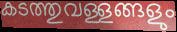
കടത്തുവള്ളങ്ങളും